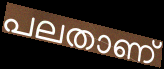
പലതാണ്